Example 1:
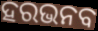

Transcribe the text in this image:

ହରଭନବ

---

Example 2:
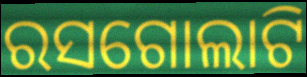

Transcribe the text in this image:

ରସଗୋଲାଟି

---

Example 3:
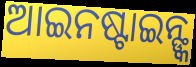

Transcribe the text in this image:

ଆଇନଷ୍ଟାଇନ୍ଙ୍କ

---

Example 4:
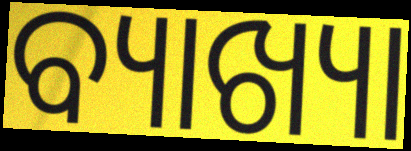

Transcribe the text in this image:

ବ୍ୟାଖ୍ୟା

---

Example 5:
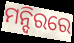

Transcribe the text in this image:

ମନ୍ଦିରରେ